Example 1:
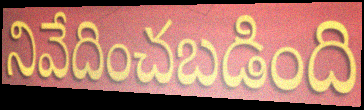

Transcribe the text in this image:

నివేదించబడింది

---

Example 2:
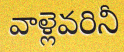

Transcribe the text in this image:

వాళ్లెవరినీ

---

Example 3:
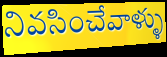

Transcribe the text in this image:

నివసించేవాళ్ళు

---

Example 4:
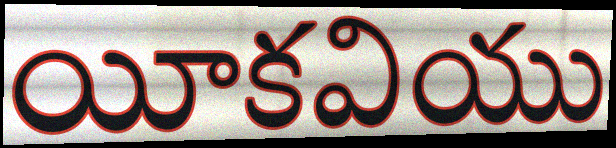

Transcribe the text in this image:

యీకవియు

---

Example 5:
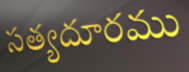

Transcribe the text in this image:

సత్యదూరము